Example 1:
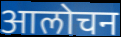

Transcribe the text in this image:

आलोचन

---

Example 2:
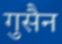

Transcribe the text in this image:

गुसैन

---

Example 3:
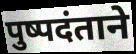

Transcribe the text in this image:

पुष्पदंताने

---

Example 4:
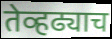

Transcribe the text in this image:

तेव्हढ्याच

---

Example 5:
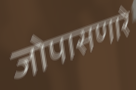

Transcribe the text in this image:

जोपासणारे